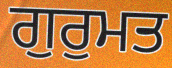
ਗੁਰੁਮਤ